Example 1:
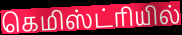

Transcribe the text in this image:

கெமிஸ்ட்ரியில்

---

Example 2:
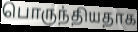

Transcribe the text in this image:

பொருந்தியதாக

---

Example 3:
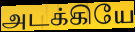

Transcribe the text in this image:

அடக்கியே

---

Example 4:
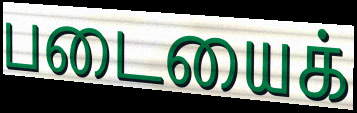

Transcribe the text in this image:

படையைக்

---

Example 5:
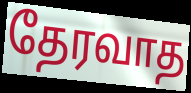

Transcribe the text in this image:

தேரவாத